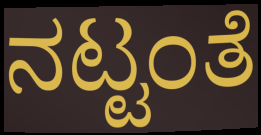
ನಟ್ಟಂತೆ